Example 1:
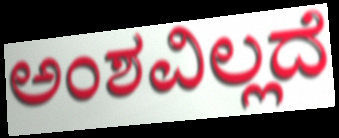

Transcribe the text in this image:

ಅಂಶವಿಲ್ಲದೆ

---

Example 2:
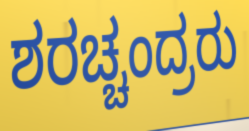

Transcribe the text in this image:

ಶರಚ್ಚಂದ್ರರು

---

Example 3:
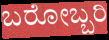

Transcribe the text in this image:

ಬರೋಬ್ಬರಿ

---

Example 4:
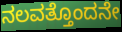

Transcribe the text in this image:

ನಲವತ್ತೊಂದನೇ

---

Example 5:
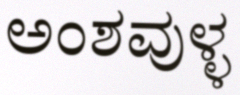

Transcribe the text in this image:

ಅಂಶವುಳ್ಳ